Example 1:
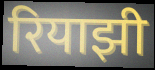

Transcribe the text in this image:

रियाझी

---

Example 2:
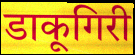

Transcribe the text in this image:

डाकूगिरी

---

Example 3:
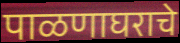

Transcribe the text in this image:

पाळणाघराचे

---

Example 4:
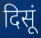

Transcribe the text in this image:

दिसूं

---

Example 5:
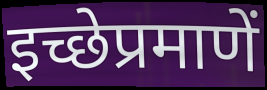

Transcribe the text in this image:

इच्छेप्रमाणें